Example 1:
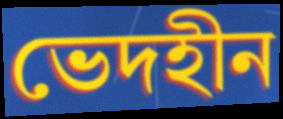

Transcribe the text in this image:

ভেদহীন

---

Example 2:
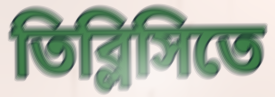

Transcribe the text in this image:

তিব্লিসিতে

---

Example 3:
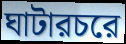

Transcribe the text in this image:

ঘাটারচরে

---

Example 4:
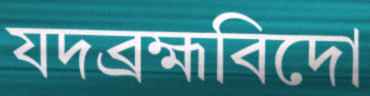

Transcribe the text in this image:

যদব্রহ্মবিদো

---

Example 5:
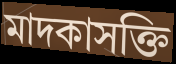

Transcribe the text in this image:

মাদকাসক্তি